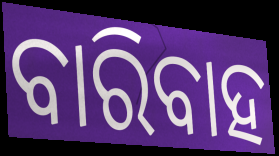
ବାରିବାହ